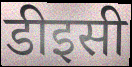
डीइसी